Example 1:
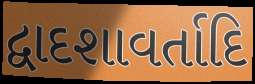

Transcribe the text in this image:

દ્વાદશાવર્તાદિ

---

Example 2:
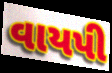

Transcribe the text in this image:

વાયપી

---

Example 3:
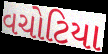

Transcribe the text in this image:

વચોટિયા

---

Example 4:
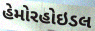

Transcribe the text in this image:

હેમોરહોઇડલ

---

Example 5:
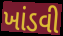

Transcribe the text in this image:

ખાંડવી